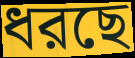
ধরছে